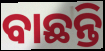
ବାଛନ୍ତି